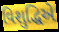
વિશુદ્ધિએ